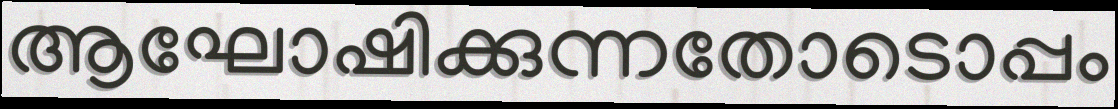
ആഘോഷിക്കുന്നതോടൊപ്പം